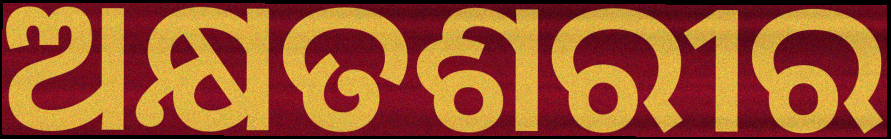
ଅକ୍ଷତଶରୀର